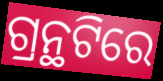
ଗ୍ରନ୍ଥଟିରେ